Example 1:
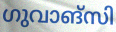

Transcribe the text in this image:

ഗുവാങ്സി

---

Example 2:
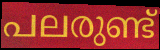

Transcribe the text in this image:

പലരുണ്ട്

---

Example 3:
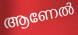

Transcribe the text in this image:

ആണേൽ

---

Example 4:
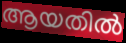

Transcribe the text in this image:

ആയതിൽ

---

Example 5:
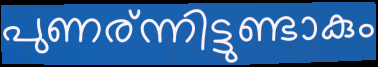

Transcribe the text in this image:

പുണര്ന്നിട്ടുണ്ടാകും